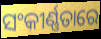
ସଂକୀର୍ଣ୍ଣତାରେ